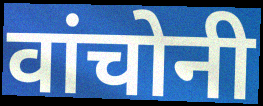
वांचोनी